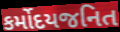
કર્મોદયજનિત